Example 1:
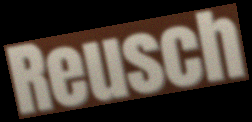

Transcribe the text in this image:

Reusch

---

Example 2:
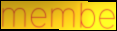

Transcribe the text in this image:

membe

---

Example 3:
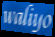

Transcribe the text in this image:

waliyo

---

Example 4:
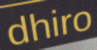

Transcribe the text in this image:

dhiro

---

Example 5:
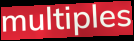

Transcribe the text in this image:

multiples